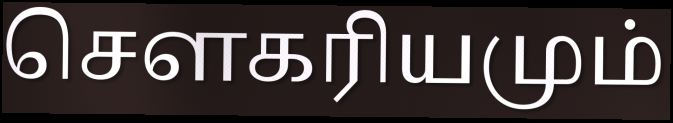
சௌகரியமும்